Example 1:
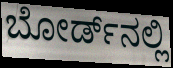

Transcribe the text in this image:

ಬೋರ್ಡ್‌ನಲ್ಲಿ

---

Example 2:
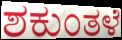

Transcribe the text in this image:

ಶಕುಂತಳೆ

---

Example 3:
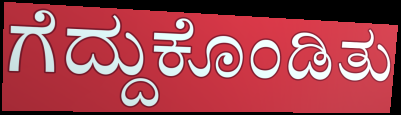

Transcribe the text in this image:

ಗೆದ್ದುಕೊಂಡಿತು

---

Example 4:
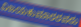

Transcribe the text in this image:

ವಿಜಯಕುಮಾರರವರು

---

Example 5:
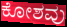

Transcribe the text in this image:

ಕೋಶವು